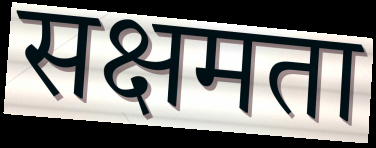
सक्षमता